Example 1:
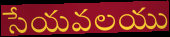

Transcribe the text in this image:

సేయవలయు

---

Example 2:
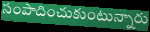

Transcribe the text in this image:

సంపాదించుకుంటున్నారు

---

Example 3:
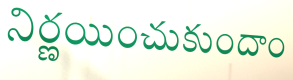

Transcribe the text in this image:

నిర్ణయించుకుందాం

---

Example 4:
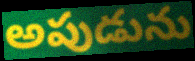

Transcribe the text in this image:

అపుడును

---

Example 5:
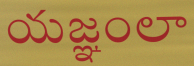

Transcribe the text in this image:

యజ్ఞంలా